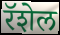
रॅशेल